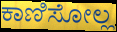
ಕಾಣಿಸೋಲ್ಲ